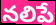
నలిపే